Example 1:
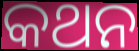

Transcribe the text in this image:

କଥନ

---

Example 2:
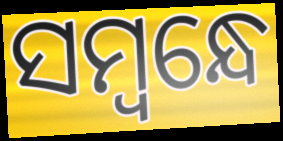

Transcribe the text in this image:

ସମ୍ବନ୍ଧେ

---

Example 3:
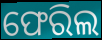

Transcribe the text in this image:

ଫେରିଲ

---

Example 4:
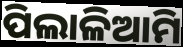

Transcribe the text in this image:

ପିଲାଳିଆମି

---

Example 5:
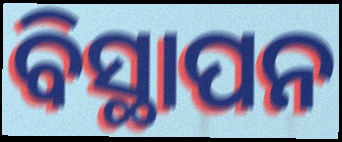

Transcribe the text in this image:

ବିସ୍ଥାପନ